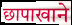
छापाखाने